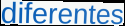
diferentes